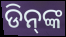
ଡିନ୍‍ଙ୍କ